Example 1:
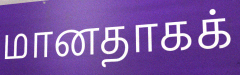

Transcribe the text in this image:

மானதாகக்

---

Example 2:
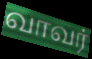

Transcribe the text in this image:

வாவர்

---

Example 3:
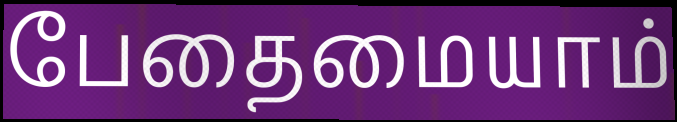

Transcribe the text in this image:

பேதைமையாம்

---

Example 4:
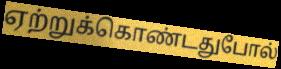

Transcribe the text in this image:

ஏற்றுக்கொண்டதுபோல்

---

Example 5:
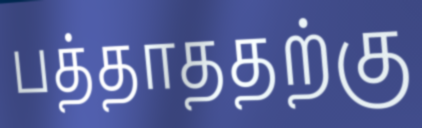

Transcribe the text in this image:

பத்தாததற்கு